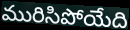
మురిసిపోయేది